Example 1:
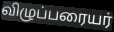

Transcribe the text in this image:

விழுப்பரையர்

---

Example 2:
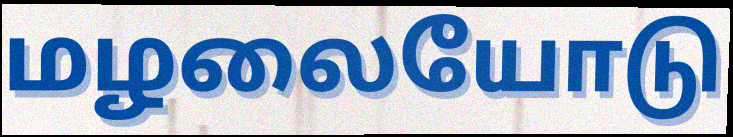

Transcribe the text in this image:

மழலையோடு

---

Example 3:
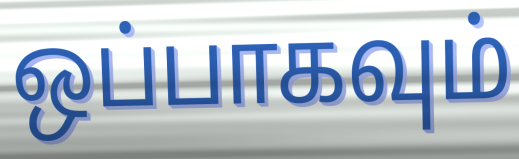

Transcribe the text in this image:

ஒப்பாகவும்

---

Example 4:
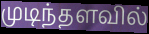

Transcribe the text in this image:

முடிந்தளவில்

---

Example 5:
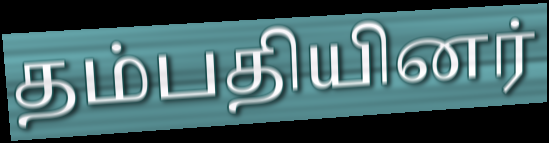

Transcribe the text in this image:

தம்பதியினர்